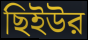
ছিইউর